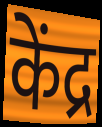
केंद्र